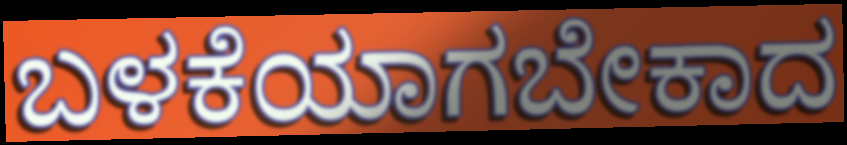
ಬಳಕೆಯಾಗಬೇಕಾದ